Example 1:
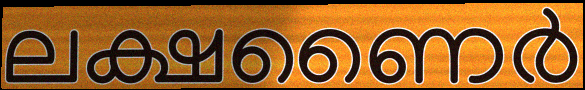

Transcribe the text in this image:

ലക്ഷണൈർ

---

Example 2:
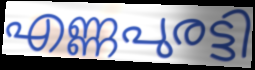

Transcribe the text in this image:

എണ്ണപുരട്ടി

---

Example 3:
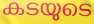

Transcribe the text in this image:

കടയുടെ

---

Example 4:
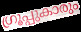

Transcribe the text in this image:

ഗ്രൂപ്പുകാരും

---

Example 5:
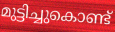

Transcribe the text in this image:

മുട്ടിച്ചുകൊണ്ട്